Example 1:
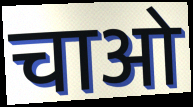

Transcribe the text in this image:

चाओ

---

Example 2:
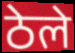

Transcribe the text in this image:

ठेले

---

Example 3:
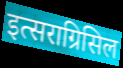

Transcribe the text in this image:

इत्सराग्रिसिल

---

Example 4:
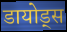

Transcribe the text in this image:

डायोड्स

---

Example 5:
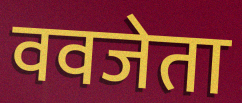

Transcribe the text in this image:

ववजेता